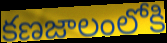
కణజాలంలోకి